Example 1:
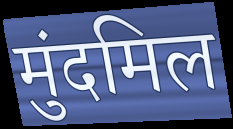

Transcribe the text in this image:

मुंदमिल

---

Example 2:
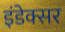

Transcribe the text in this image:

इंडेक्सर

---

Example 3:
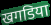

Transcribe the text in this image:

खगडिया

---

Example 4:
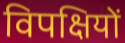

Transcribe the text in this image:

विपक्षियों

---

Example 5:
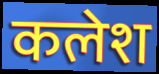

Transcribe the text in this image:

कलेश